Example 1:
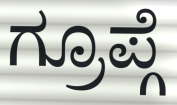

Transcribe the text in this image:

ಗ್ರೂಪ್ಗೆ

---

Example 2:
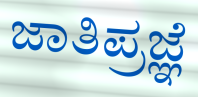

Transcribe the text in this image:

ಜಾತಿಪ್ರಜ್ಞೆ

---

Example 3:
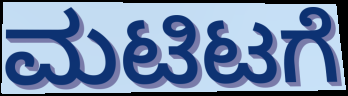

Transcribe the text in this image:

ಮಟಿಟಗೆ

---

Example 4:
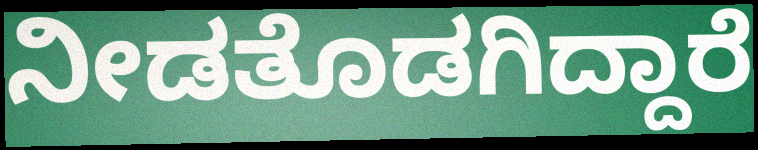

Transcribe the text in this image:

ನೀಡತೊಡಗಿದ್ದಾರೆ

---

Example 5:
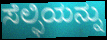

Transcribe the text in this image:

ಸೆಲ್ಫಿಯನ್ನು